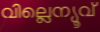
വില്ലെന്യൂവ്